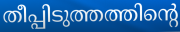
തീപ്പിടുത്തത്തിന്റെ